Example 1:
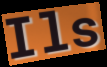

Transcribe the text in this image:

Ils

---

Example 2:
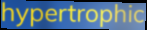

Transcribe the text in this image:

hypertrophic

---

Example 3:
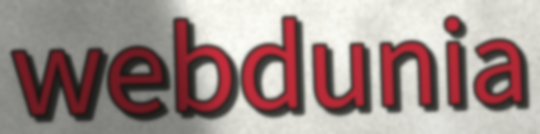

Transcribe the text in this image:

webdunia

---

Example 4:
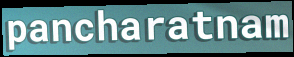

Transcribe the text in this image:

pancharatnam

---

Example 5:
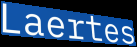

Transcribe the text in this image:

Laertes